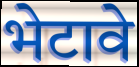
भेटावे